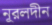
নূরলদীন